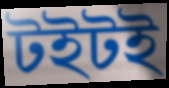
টইটই